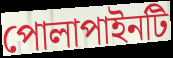
পোলাপাইনটি